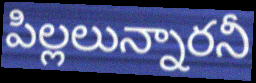
పిల్లలున్నారనీ